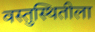
वस्तुस्थितीला